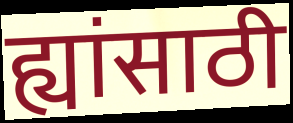
ह्यांसाठी